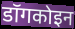
डॉगकोइन